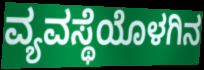
ವ್ಯವಸ್ಥೆಯೊಳಗಿನ